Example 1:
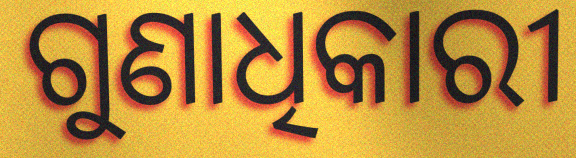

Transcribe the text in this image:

ଗୁଣାଧିକାରୀ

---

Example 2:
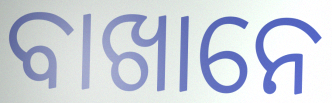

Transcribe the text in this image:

ବାଖାନେ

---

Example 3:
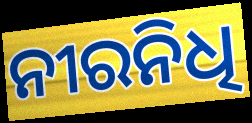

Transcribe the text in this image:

ନୀରନିଧି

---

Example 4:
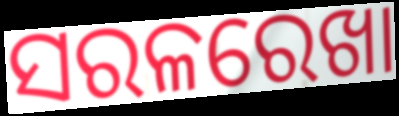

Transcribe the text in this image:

ସରଳରେଖା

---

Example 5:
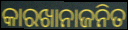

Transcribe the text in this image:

କାରଖାନାଜନିତ